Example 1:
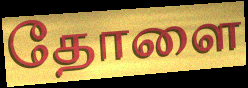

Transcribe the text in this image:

தோளை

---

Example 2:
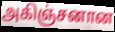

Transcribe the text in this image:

அகிஞ்சனான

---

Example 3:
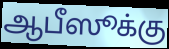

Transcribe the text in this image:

ஆபீஸூக்கு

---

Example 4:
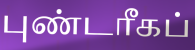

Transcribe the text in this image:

புண்டரீகப்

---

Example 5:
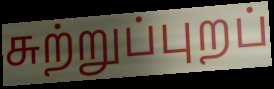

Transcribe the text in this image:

சுற்றுப்புறப்